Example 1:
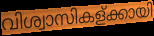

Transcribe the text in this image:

വിശ്വാസികള്ക്കായി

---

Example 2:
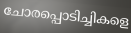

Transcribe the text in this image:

ചോരപ്പൊടിച്ചികളെ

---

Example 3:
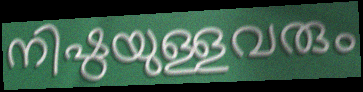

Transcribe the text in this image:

നിഷ്ഠയുള്ളവരും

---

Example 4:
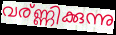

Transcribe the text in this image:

വര്ണ്ണിക്കുന്നു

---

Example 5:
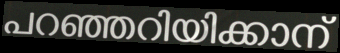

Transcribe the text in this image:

പറഞ്ഞറിയിക്കാന്